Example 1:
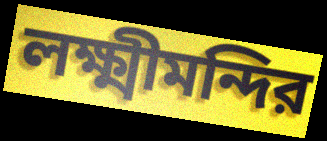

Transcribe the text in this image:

লক্ষ্মীমন্দির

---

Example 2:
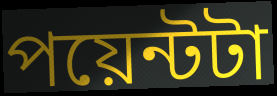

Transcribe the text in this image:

পয়েন্টটা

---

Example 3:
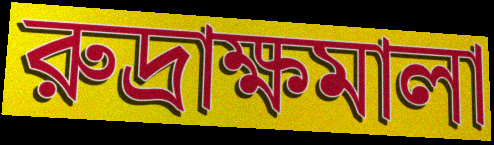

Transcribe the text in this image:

রুদ্রাক্ষমালা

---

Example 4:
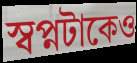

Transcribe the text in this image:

স্বপ্নটাকেও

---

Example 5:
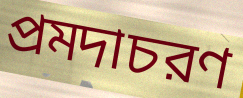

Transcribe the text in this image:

প্রমদাচরণ